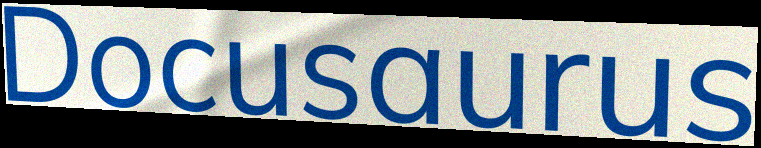
Docusaurus